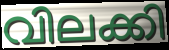
വിലക്കി